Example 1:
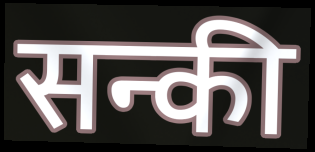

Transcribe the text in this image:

सन्की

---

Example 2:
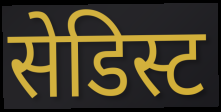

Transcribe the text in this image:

सेडिस्ट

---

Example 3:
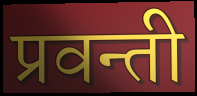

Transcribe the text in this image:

प्रवन्ती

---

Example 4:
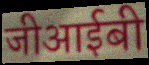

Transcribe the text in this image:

जीआईबी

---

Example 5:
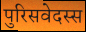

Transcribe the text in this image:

पुरिसवेदस्स